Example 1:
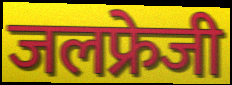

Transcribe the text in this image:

जलफ्रेजी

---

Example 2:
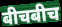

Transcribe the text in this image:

बीचबीच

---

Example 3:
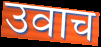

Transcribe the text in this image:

उवाच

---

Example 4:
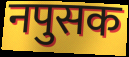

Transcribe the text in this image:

नपुसक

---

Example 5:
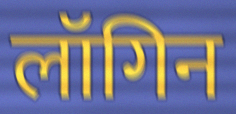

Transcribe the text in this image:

लॉगिन